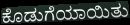
ಕೊಡುಗೆಯಾಯಿತು